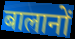
बालानों